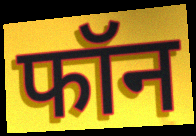
फॉन